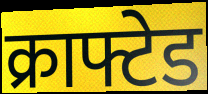
क्राफ्टेड